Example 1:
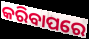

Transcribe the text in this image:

କରିବାପରେ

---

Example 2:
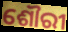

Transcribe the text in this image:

ଶୌରୀ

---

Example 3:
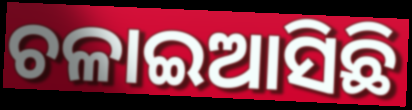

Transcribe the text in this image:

ଚଳାଇଆସିଛି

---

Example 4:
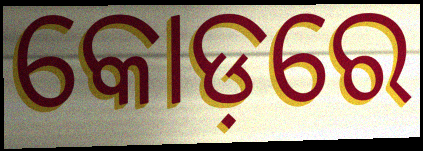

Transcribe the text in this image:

କୋଡ଼ରେ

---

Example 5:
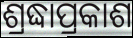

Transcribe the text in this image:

ଶ୍ରଦ୍ଧାପ୍ରକାଶ